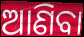
ଆଣିବା